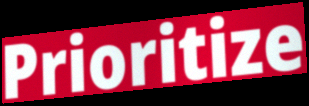
Prioritize